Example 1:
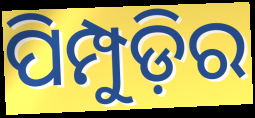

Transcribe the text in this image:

ପିମ୍ପୁଡ଼ିର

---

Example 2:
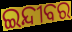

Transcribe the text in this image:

ଇନ୍ଦୀବର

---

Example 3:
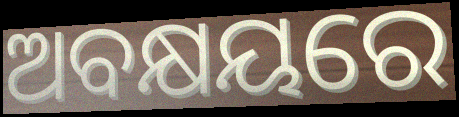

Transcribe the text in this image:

ଅବକ୍ଷୟରେ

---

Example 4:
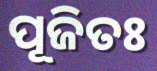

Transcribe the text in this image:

ପୂଜିତଃ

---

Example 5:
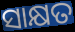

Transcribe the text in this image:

ସାକ୍ଷତ